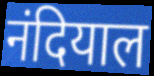
नंदियाल